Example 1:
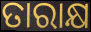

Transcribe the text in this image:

ତାରାକ୍ଷ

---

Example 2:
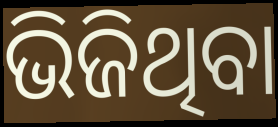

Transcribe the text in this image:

ଭିଜିଥିବା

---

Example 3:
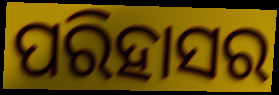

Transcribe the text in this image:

ପରିହାସର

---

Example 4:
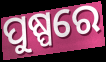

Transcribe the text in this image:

ପୁଷ୍ପରେ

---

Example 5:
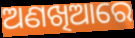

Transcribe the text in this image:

ଅଣଖିଆରେ